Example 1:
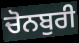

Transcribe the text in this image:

ਚੋਨਬੁਰੀ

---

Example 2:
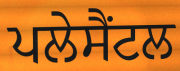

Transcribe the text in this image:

ਪਲੇਸੈਂਟਲ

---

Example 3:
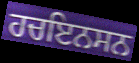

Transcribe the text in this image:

ਹਚਇਨਸਨ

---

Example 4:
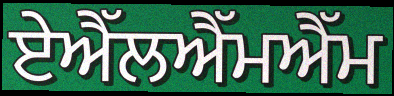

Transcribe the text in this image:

ਏਐੱਲਐੱਮਐੱਮ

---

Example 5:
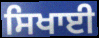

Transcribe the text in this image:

ਸਿਖਾਈ